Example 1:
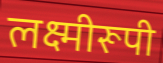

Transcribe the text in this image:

लक्ष्मीरूपी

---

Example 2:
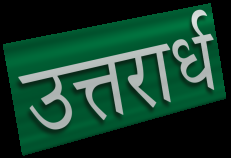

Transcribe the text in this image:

उत्तरार्ध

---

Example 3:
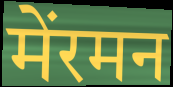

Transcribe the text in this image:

मेंरमन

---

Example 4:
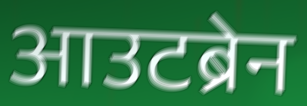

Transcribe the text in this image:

आउटब्रेन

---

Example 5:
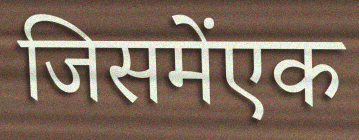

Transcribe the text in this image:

जिसमेंएक